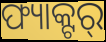
ଫ୍ୟାକ୍ଟର୍